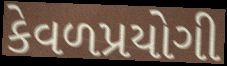
કેવળપ્રયોગી